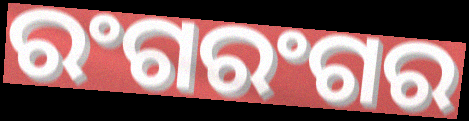
ରଂଗରଂଗର